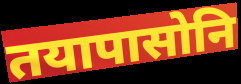
तयापासोनि